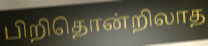
பிறிதொன்றிலாத